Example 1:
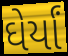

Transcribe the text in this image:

ઘેર્યાં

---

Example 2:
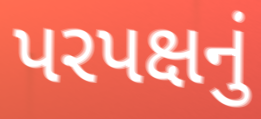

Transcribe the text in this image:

પરપક્ષનું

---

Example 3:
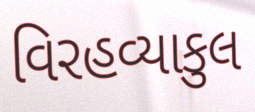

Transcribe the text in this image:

વિરહવ્યાકુલ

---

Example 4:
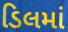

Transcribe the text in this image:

ડિલમાં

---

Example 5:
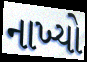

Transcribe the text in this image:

નાખ્યો